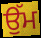
ਉੱਮ